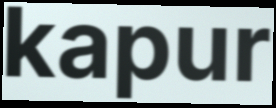
kapur